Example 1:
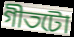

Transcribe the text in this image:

গীতটো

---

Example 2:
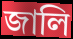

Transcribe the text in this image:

জালি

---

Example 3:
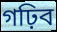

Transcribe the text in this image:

গঢ়িব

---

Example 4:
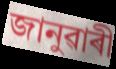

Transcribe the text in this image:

জানুৱাৰী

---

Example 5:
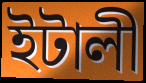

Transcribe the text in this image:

ইটালী